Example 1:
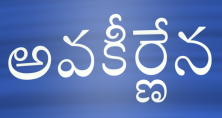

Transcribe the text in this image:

అవకీర్ణేన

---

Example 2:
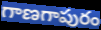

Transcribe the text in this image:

గాణగాపురం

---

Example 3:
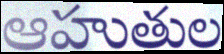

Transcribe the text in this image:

ఆహుతుల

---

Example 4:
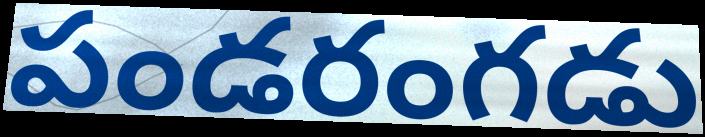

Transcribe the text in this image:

పండరంగడు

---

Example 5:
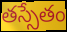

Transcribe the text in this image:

తస్సేతం